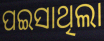
ପଇସାଥିଲା